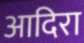
आदिरा